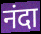
नंदा